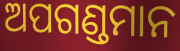
ଅପଗଣ୍ଡମାନ